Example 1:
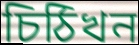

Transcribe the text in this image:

চিঠিখন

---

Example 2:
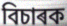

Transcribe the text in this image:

বিচাৰক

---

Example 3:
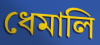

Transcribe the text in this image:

ধেমালি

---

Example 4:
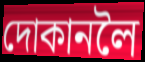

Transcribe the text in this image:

দোকানলৈ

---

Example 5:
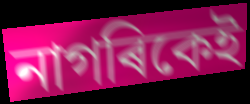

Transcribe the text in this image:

নাগৰিকেই